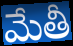
మేతీ